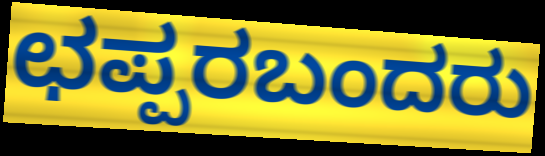
ಛಪ್ಪರಬಂದರು